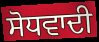
ਸੋਧਵਾਦੀ